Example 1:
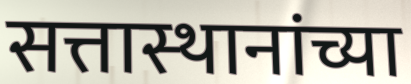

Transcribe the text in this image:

सत्तास्थानांच्या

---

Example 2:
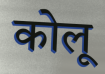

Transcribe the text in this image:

कोलू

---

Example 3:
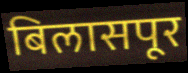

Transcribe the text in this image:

बिलासपूर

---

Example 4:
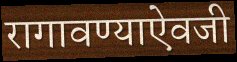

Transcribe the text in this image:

रागावण्याऐवजी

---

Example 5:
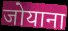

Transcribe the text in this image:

जोयाना